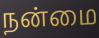
நன்மை